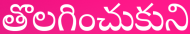
తొలగించుకుని